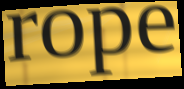
rope